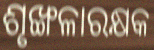
ଶୃଙ୍ଖଳାରକ୍ଷକ